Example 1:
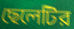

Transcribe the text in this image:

ছেলেটির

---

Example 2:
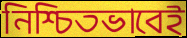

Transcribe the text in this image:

নিশ্চিতভাবেই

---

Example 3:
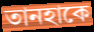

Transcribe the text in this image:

তানহাকে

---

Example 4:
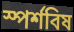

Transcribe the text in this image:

স্পর্শবিষ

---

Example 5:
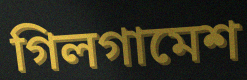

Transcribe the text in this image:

গিলগামেশ